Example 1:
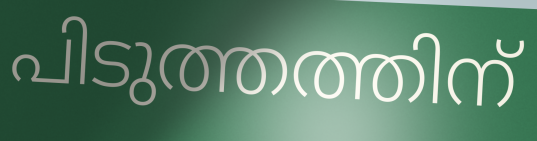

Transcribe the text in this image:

പിടുത്തത്തിന്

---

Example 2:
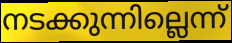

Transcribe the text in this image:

നടക്കുന്നില്ലെന്ന്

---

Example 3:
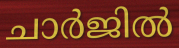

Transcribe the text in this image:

ചാർജിൽ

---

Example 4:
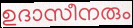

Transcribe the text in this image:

ഉദാസീനരും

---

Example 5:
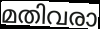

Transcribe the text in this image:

മതിവരാ